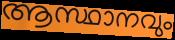
ആസ്ഥാനവും